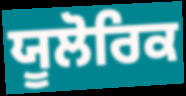
ਯੂਲੋਰਿਕ